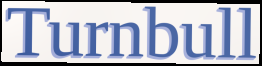
Turnbull